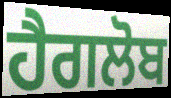
ਹੈਗਲੋਬ